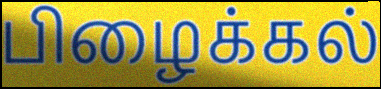
பிழைக்கல்